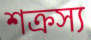
শক্রস্য